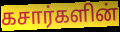
கசார்களின்